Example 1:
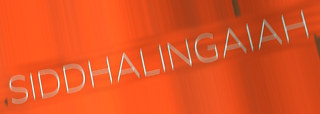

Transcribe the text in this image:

SIDDHALINGAIAH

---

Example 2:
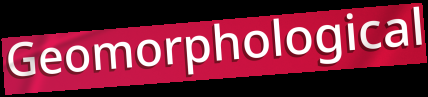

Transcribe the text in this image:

Geomorphological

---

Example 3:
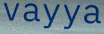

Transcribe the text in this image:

vayya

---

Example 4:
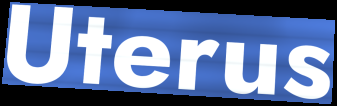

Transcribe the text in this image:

Uterus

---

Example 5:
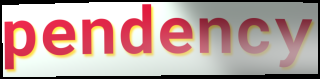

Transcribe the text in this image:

pendency